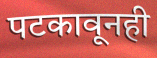
पटकावूनही